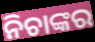
ନିଚାଙ୍କର